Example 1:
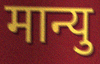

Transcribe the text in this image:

मान्यु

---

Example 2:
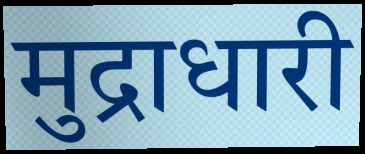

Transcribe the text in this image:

मुद्राधारी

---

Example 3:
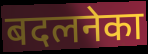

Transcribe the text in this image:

बदलनेका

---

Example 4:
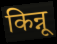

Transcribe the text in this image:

किन्नू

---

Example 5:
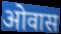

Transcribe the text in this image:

ओवास